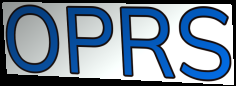
OPRS